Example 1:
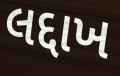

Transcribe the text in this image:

લદ્દાખ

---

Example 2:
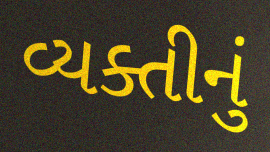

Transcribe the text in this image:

વ્યક્તીનું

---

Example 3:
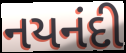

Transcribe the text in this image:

નયનંદી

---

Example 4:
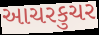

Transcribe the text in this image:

આચરકુચર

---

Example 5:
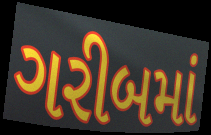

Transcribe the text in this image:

ગરીબમાં